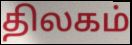
திலகம்